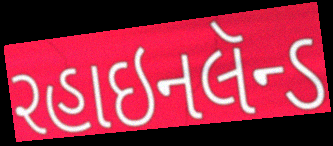
રહાઇનલૅન્ડ